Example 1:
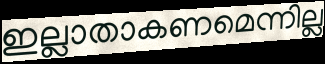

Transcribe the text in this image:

ഇല്ലാതാകണമെന്നില്ല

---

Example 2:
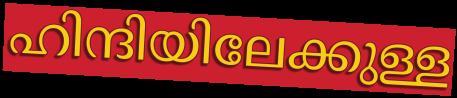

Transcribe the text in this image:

ഹിന്ദിയിലേക്കുള്ള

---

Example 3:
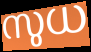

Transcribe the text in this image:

സുധ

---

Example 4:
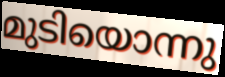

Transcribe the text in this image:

മുടിയൊന്നു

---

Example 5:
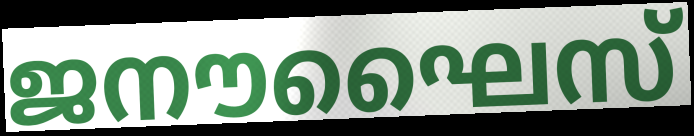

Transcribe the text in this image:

ജനൗഘൈസ്